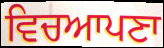
ਵਿਚਆਪਣਾ